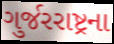
ગુર્જરરાષ્ટ્રના